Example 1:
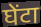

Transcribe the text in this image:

घेंटा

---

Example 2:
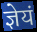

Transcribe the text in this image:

ज्ञेयं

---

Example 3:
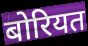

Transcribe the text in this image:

बोरियत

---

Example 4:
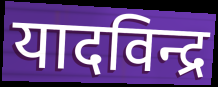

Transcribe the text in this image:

यादविन्द्र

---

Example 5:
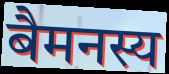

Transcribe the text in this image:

बैमनस्य